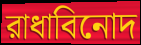
রাধাবিনোদ